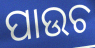
ପାଉଚ